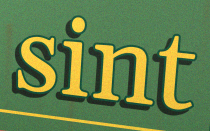
sint